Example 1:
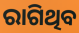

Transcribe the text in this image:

ରାଗିଥିବ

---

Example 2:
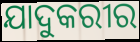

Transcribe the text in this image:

ଯାଦୁକରୀର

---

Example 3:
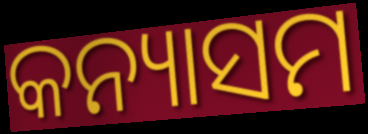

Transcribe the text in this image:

କନ୍ୟାସମ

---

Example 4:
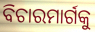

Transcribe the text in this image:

ବିଚାରମାର୍ଗକୁ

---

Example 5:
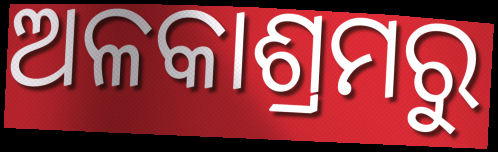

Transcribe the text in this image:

ଅଳକାଶ୍ରମରୁ